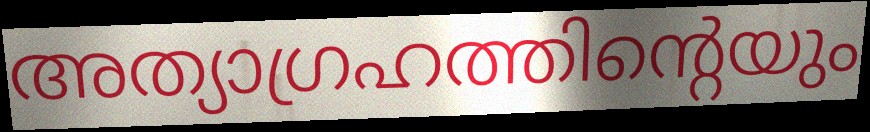
അത്യാഗ്രഹത്തിന്റെയും